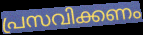
പ്രസവിക്കണം